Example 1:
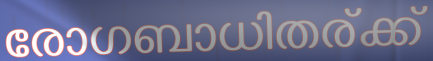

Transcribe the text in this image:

രോഗബാധിതര്ക്ക്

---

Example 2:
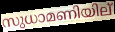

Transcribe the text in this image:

സുധാമണിയില്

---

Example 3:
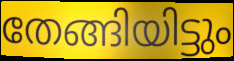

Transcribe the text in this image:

തേങ്ങിയിട്ടും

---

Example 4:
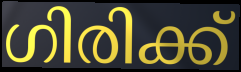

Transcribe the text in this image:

ഗിരിക്ക്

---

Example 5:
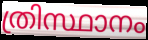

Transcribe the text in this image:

ത്രിസ്ഥാനം